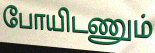
போயிடணும்